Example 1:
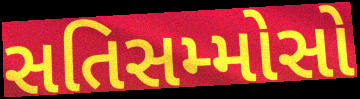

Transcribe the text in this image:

સતિસમ્મોસો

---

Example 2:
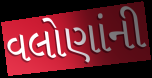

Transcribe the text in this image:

વલોણાંની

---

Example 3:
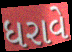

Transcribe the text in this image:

ધરાવે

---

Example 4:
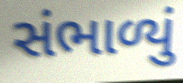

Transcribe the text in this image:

સંભાળ્યું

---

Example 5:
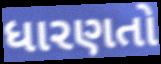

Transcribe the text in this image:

ધારણતો